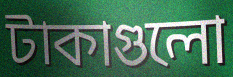
টাকাগুলো